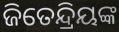
ଜିତେନ୍ଦ୍ରିୟଙ୍କ